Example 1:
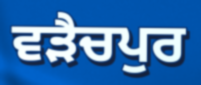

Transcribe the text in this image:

ਵੜੈਚਪੁਰ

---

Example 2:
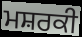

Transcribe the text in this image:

ਮਸ਼ਰਕੀ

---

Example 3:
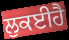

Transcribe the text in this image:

ਲੁਕਈਹੈ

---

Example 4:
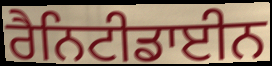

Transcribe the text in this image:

ਰੈਨਿਟੀਡਾਈਨ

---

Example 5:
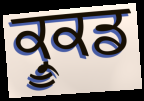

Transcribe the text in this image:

ਕ੍ਰੂਕਡ